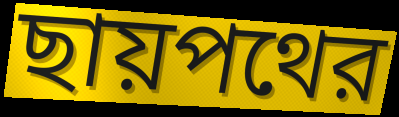
ছায়পথের